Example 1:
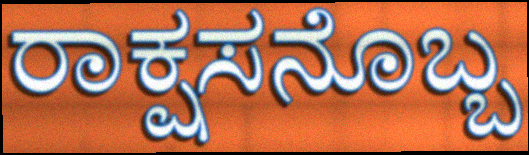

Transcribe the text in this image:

ರಾಕ್ಷಸನೊಬ್ಬ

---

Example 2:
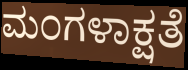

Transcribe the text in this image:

ಮಂಗಳಾಕ್ಷತೆ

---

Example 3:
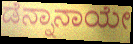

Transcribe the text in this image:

ಡೆನ್ನಾನಾಯೇ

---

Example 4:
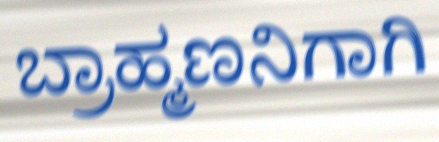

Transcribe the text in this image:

ಬ್ರಾಹ್ಮಣನಿಗಾಗಿ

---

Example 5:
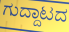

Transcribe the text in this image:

ಗುದ್ದಾಟದ